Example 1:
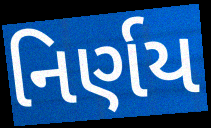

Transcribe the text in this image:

નિર્ણય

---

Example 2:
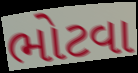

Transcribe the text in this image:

ભોટવા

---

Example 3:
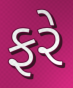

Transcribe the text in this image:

ફરે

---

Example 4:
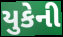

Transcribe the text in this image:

યુકેની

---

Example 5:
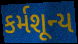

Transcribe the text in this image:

કર્મશૂન્ય